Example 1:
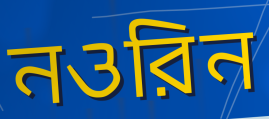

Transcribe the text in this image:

নওরিন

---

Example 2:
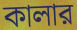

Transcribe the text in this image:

কালার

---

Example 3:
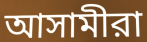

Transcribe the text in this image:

আসামীরা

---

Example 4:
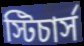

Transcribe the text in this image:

স্টিচার্স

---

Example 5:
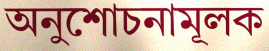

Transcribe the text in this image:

অনুশোচনামূলক